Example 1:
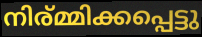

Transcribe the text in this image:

നിര്മ്മിക്കപ്പെട്ടു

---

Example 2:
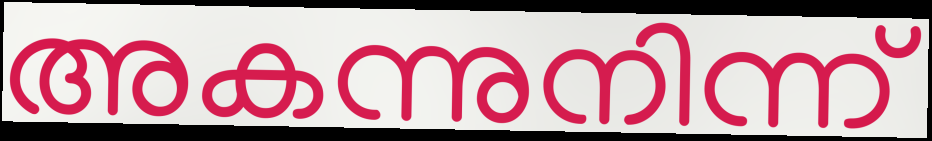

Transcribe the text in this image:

അകന്നുനിന്ന്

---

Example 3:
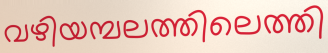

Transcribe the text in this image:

വഴിയമ്പലത്തിലെത്തി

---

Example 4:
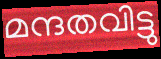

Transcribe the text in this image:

മന്ദതവിട്ടു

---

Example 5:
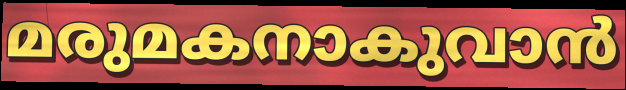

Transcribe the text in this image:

മരുമകനാകുവാൻ